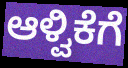
ಆಳ್ವಿಕೆಗೆ